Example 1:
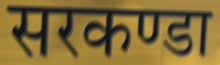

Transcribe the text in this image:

सरकण्डा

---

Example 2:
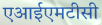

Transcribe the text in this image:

एआईएमटीसी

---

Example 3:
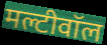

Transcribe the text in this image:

मल्टीवॉल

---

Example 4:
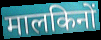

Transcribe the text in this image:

मालकिनों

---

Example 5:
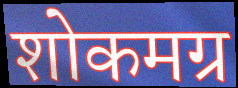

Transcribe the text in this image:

शोकमग्र